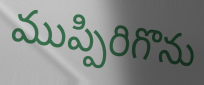
ముప్పిరిగొను